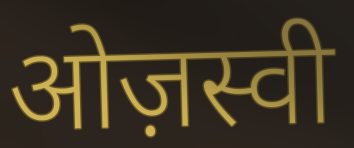
ओज़स्वी